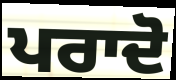
ਪਰਾਦੋ